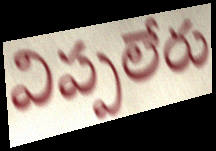
విప్పలేరు